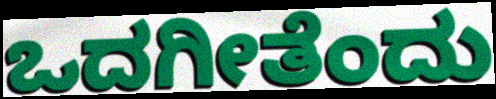
ಒದಗೀತೆಂದು